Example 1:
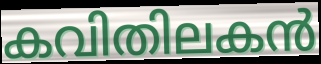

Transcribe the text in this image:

കവിതിലകൻ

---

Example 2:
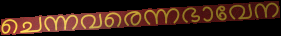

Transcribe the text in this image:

ചെന്നവരെന്നഭാവേന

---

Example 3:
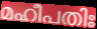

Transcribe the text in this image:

മഹീപതിഃ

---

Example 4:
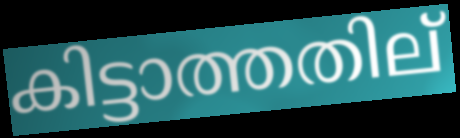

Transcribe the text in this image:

കിട്ടാത്തതില്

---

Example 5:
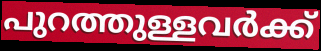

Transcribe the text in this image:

പുറത്തുള്ളവർക്ക്